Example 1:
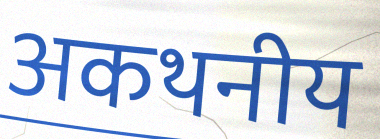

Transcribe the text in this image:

अकथनीय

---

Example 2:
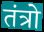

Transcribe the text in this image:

तंत्रो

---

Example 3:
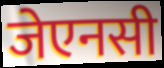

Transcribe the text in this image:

जेएनसी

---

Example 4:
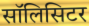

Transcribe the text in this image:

सॉलिसिटर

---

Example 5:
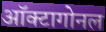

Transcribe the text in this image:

ऑक्टागोनल